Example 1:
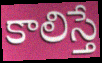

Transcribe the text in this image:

కాలిస్తే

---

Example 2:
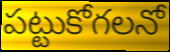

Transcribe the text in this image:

పట్టుకోగలనో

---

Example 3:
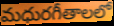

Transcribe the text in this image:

మధురగీతాలలో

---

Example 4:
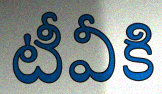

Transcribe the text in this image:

టీవీకి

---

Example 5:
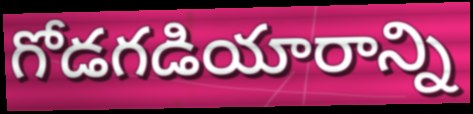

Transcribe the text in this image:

గోడగడియారాన్ని